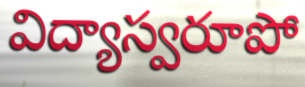
విద్యాస్వరూపో